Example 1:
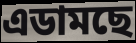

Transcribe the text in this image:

এডামছে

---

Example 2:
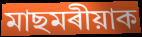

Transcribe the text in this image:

মাছমৰীয়াক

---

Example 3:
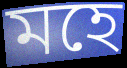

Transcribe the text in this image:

মহে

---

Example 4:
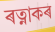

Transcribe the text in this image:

ৰত্নাকৰ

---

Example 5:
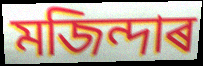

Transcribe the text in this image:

মজিন্দাৰ